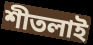
শীতলাই